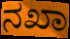
ನಖಾ